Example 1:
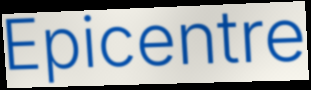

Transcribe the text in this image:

Epicentre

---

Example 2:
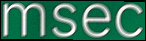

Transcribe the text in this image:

msec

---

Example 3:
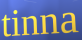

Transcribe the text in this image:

tinna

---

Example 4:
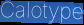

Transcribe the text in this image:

Calotype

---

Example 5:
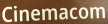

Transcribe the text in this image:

Cinemacom